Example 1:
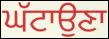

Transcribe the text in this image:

ਘੱਟਾਉਣਾ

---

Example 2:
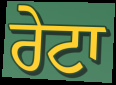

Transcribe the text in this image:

ਰੇਟਾ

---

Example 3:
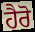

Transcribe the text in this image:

ਹੈਰੋ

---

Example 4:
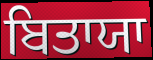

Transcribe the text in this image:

ਬਿਤਾਯਾ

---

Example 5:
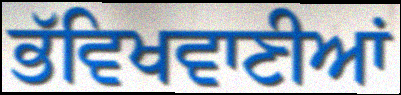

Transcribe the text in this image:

ਭੱਵਿਖਵਾਣੀਆਂ